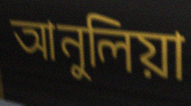
আনুলিয়া